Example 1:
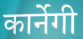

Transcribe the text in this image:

कार्नेगी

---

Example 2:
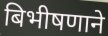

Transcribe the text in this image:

बिभीषणाने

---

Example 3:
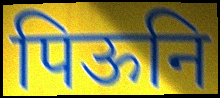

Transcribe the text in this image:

पिऊनि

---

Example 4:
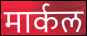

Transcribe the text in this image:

मार्कल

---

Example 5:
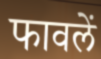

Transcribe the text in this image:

फावलें